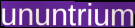
ununtrium